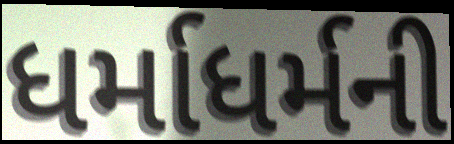
ધર્માધર્મની